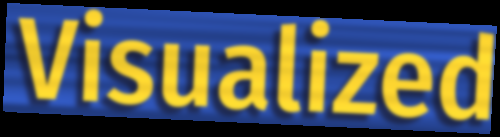
Visualized